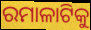
ରମାଳାଟିକୁ